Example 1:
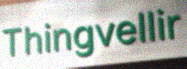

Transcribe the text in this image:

Thingvellir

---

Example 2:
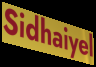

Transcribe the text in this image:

Sidhaiyel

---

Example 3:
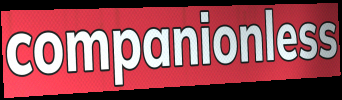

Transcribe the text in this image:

companionless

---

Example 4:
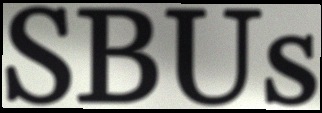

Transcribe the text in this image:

SBUs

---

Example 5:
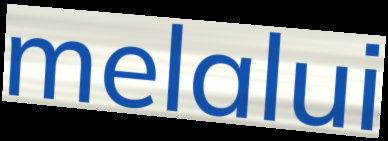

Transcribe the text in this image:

melalui